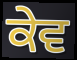
ਕੇਵ